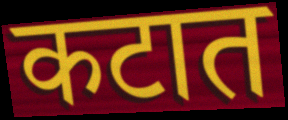
कटात